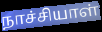
நாச்சியாள்